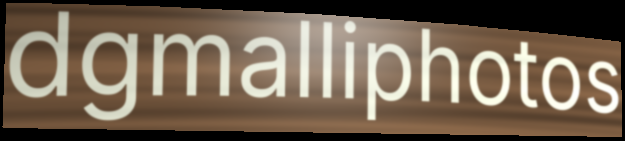
dgmalliphotos